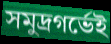
সমুদ্রগর্ভেই